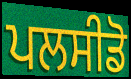
ਪਲਸੀਡੋ